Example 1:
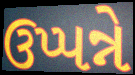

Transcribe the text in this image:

ઉપ્પન્ને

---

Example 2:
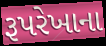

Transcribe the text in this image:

રૂપરેખાના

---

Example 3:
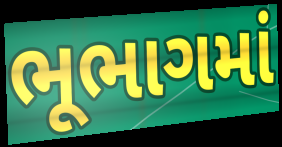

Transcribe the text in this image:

ભૂભાગમાં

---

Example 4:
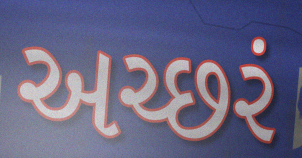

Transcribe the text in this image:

અચ્છરં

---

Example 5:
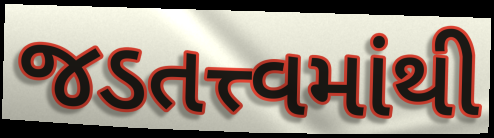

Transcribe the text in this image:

જડતત્ત્વમાંથી